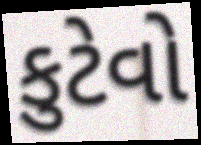
કુટેવો